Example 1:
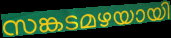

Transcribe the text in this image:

സങ്കടമഴയായി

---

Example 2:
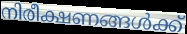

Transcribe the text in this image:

നിരീക്ഷണങ്ങൾക്ക്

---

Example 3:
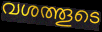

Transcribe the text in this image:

വശത്തൂടെ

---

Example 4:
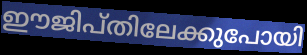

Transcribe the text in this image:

ഈജിപ്തിലേക്കുപോയി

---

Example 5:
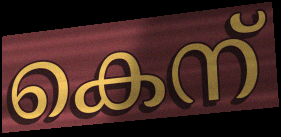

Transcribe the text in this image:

കെന്